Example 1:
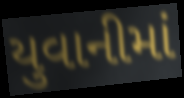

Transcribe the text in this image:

યુવાનીમાં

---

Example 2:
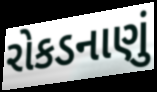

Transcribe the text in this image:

રોકડનાણું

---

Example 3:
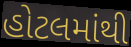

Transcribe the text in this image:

હોટલમાંથી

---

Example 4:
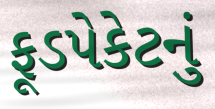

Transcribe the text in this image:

ફૂડપેકેટનું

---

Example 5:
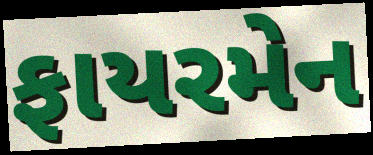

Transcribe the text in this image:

ફાયરમેન